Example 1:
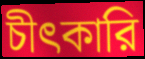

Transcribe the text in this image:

চীৎকারি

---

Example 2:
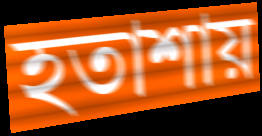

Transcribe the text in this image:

হতাশায়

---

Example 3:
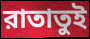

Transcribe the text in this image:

রাতাতুই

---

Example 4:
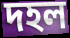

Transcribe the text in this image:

দহল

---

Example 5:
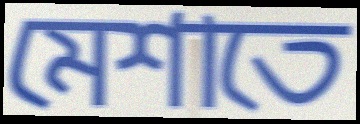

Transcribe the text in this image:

মেশাতে